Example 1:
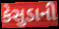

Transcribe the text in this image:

કેસુડાની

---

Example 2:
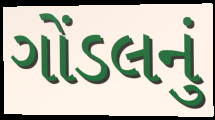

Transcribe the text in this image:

ગોંડલનું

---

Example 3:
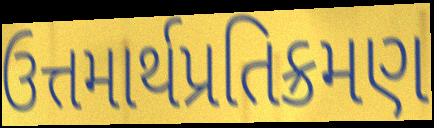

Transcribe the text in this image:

ઉત્તમાર્થપ્રતિક્રમણ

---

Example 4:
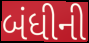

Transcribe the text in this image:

બંધીની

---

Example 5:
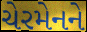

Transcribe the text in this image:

ચેરમેનને